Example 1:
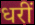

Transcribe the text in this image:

धरीं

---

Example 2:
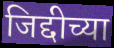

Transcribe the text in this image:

जिद्दीच्या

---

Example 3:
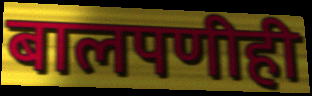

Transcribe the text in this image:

बालपणीही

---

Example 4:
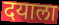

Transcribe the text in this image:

दयाला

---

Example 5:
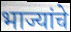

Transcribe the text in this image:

भाज्यांचे